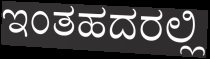
ಇಂತಹದರಲ್ಲಿ